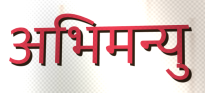
अभिमन्यु